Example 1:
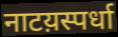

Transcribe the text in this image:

नाटय़स्पर्धा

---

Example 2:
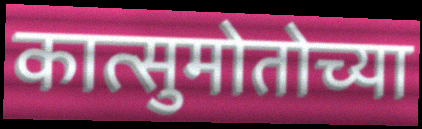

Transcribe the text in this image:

कात्सुमोतोच्या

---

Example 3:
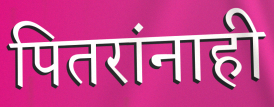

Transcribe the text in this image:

पितरांनाही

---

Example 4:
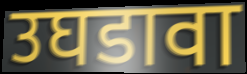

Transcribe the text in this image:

उघडावा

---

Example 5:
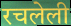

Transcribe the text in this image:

रचलेली